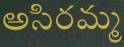
అసిరమ్మ